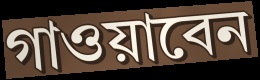
গাওয়াবেন